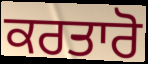
ਕਰਤਾਰੋ